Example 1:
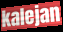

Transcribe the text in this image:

kalejan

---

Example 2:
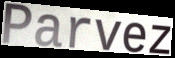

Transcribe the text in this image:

Parvez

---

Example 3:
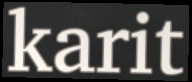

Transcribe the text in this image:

karit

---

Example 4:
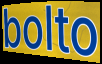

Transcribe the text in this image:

bolto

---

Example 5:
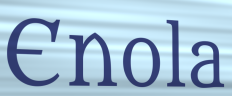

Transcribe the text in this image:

Enola